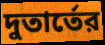
দুতার্তের